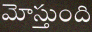
మోస్తుంది